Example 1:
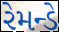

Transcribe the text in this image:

રેમન્ડે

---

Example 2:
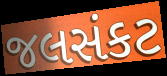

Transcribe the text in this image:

જલસંકટ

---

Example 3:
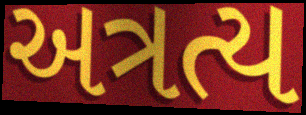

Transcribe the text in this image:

અત્રત્ય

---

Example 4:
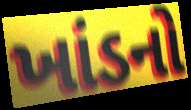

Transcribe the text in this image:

ખાંડનો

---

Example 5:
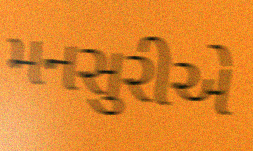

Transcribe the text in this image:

મનસુરીએ